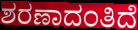
ಶರಣಾದಂತಿದೆ